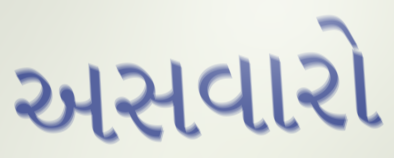
અસવારો